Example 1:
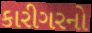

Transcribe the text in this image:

કારીગરનો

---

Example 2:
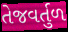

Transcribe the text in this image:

તેજવર્તુળ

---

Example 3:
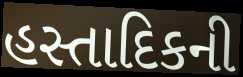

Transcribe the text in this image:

હસ્તાદિકની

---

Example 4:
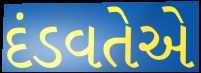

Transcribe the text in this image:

દંડવતેએ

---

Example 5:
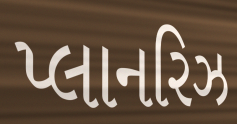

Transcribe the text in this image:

પ્લાનરિઝ